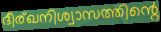
ദീര്ഖനിശ്വാസത്തിന്റെ